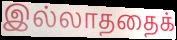
இல்லாததைக்